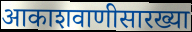
आकाशवाणीसारख्या